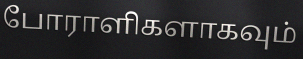
போராளிகளாகவும்